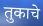
तुकाचे